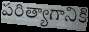
పరిత్యాగానికి